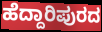
ಹೆದ್ದಾರಿಪುರದ